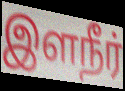
இளநீர்